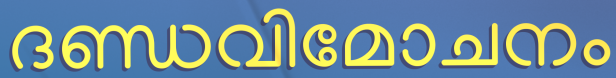
ദണ്ഡവിമോചനം